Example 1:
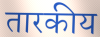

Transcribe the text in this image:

तारकीय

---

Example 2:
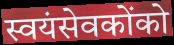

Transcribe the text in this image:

स्वयंसेवकोंको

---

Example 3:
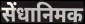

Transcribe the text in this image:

सेंधानिमक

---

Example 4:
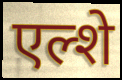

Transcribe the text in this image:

एल्शे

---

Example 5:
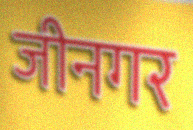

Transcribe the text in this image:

जीनगर